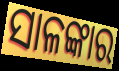
ସାଳଙ୍କାର